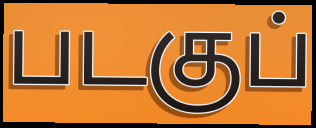
படகுப்